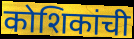
कोशिकांची